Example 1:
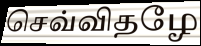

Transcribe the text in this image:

செவ்விதழே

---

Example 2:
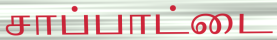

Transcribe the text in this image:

சாப்பாட்டை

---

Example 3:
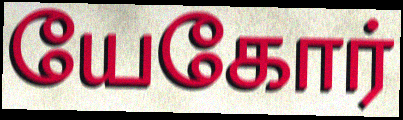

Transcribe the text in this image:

யேகோர்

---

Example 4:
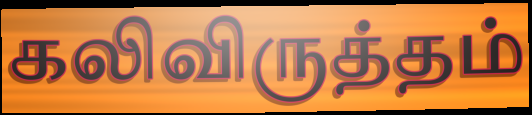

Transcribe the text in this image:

கலிவிருத்தம்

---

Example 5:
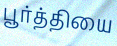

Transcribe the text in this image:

பூர்த்தியை